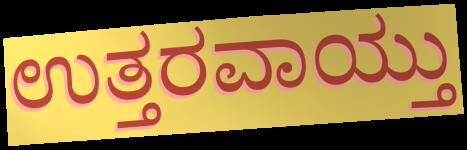
ಉತ್ತರವಾಯ್ತು